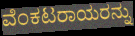
ವೆಂಕಟರಾಯರನ್ನು